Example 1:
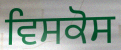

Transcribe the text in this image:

ਵਿਸਕੋਸ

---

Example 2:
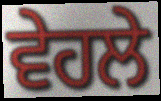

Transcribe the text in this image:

ਵੇਹਲੇ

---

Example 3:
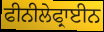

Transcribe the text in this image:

ਫੀਨੀਲੇਫ੍ਰਾਈਨ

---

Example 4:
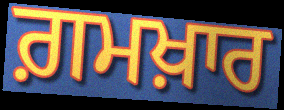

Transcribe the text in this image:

ਗ਼ਮਖ਼ਾਰ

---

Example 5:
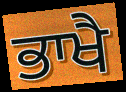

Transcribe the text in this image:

ਭਾਖੈ